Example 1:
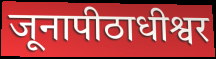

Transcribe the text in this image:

जूनापीठाधीश्वर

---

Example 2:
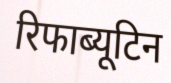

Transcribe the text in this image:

रिफाब्यूटिन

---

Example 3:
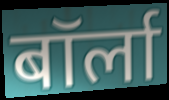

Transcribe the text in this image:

बॉर्ला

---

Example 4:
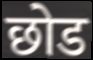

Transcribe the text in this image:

छोड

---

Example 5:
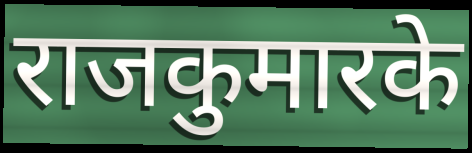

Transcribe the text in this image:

राजकुमारके